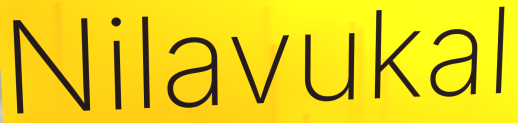
Nilavukal